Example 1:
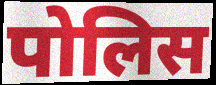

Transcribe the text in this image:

पोलिस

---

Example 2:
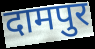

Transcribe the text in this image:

दामपुर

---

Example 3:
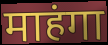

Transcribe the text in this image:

माहंगा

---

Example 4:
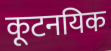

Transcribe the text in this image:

कूटनयिक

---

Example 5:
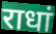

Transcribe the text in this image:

राधां